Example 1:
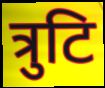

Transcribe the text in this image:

त्रुटि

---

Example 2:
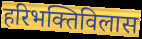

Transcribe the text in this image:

हरिभक्तिविलास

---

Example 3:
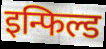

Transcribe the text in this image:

इन्फिल्ड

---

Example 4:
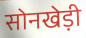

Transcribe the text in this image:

सोनखेड़ी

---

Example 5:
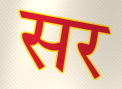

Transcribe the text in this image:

सर